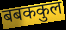
बबककुल